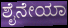
ಶೈನೇಯಾ